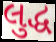
લુદ્ધ